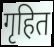
गृहित